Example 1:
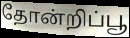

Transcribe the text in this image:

தோன்றிப்பூ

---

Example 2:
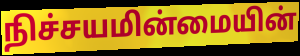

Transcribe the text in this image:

நிச்சயமின்மையின்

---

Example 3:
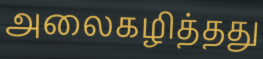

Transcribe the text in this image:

அலைகழித்தது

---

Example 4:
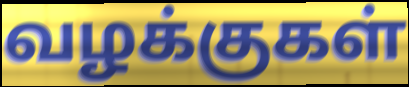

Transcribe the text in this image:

வழக்குகள்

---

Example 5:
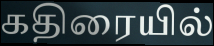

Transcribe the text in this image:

கதிரையில்